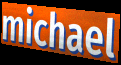
michael